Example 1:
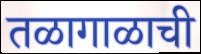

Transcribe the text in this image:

तळागाळाची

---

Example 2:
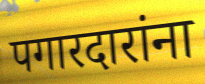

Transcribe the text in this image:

पगारदारांना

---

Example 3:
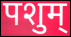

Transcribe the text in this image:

पशुम्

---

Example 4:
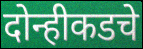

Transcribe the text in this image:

दोन्हीकडचे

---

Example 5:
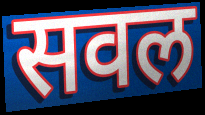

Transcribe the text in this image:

सवल